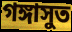
গঙ্গাসুত